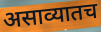
असाव्यातच